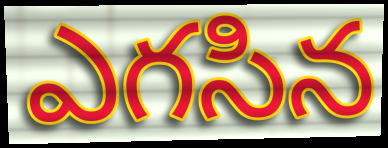
ఎగసిన